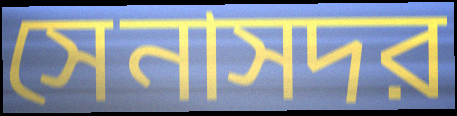
সেনাসদর